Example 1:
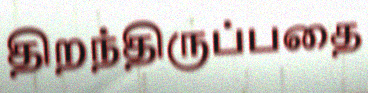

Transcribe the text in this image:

திறந்திருப்பதை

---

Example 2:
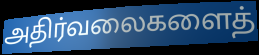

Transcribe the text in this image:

அதிர்வலைகளைத்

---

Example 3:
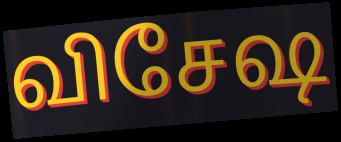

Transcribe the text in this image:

விசேஷ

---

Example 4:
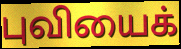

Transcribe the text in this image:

புவியைக்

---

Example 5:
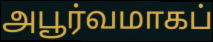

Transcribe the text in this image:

அபூர்வமாகப்